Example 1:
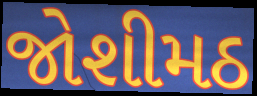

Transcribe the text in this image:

જોશીમઠ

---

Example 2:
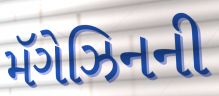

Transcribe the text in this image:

મૅગેઝિનની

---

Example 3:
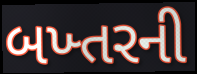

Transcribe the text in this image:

બખ્તરની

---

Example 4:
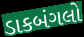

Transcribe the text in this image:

ડાકબંગલો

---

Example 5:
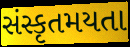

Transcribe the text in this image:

સંસ્કૃતમયતા